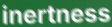
inertness